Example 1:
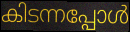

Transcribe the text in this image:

കിടന്നപ്പോൾ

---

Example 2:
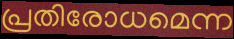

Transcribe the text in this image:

പ്രതിരോധമെന്ന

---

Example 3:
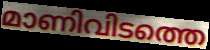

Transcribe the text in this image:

മാണിവിടത്തെ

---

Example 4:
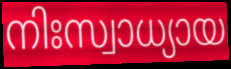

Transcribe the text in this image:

നിഃസ്വാധ്യായ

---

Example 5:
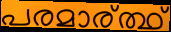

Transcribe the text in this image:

പരമാര്ത്ഥ്